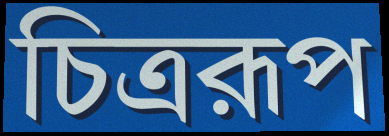
চিত্ররূপ